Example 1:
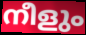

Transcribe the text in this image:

നീളും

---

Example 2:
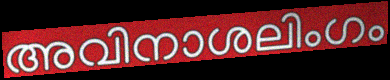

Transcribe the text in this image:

അവിനാശലിംഗം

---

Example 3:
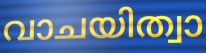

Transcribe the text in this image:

വാചയിത്വാ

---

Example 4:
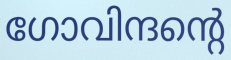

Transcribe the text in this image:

ഗോവിന്ദന്റെ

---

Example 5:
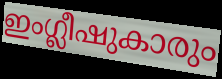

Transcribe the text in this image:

ഇംഗ്ലീഷുകാരും